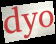
dyo